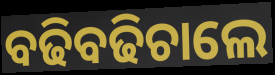
ବଢିବଢିଚାଲେ